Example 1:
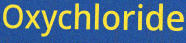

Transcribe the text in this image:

Oxychloride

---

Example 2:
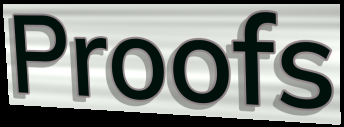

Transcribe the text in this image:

Proofs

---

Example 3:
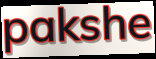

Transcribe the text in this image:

pakshe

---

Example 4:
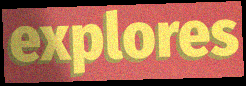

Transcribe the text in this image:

explores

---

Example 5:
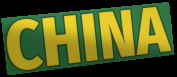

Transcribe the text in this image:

CHINA